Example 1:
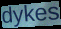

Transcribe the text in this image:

dykes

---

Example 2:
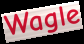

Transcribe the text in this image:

Wagle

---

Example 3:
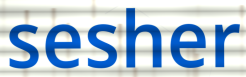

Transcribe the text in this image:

sesher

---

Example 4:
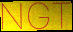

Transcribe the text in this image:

NGT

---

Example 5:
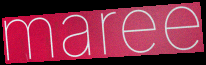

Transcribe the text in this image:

maree